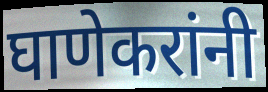
घाणेकरांनी